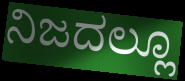
ನಿಜದಲ್ಲೂ